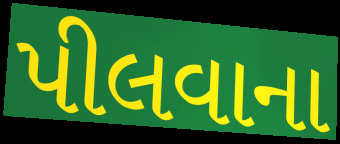
પીલવાના